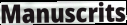
Manuscrits